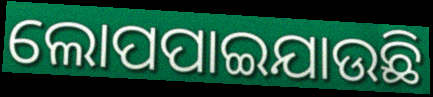
ଲୋପପାଇଯାଉଛି